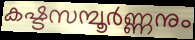
കഷ്ടസമ്പൂർണ്ണനും